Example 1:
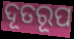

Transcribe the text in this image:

ଦୂତରୂପ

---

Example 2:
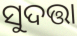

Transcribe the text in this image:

ସୁଦତ୍ତା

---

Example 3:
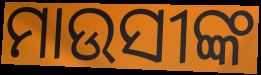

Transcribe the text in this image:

ମାଉସୀଙ୍କ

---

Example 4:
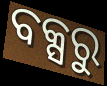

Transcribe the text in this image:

ବକ୍ସରୁ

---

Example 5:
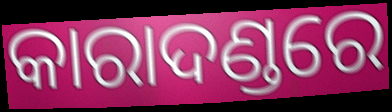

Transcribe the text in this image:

କାରାଦଣ୍ଡରେ